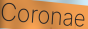
Coronae